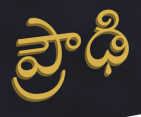
ప్రౌఢి